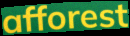
afforest